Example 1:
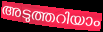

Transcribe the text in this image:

അടുത്തറിയാം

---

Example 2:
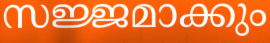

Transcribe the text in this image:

സജ്ജമാക്കും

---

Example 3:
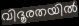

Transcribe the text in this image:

വിദൂരതയിൽ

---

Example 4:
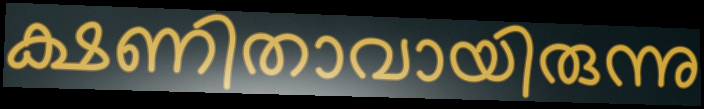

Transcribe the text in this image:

ക്ഷണിതാവായിരുന്നു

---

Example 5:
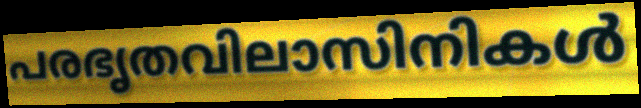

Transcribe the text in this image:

പരഭൃതവിലാസിനികൾ